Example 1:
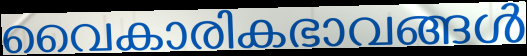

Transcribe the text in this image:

വൈകാരികഭാവങ്ങൾ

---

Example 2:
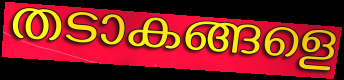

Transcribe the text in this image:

തടാകങ്ങളെ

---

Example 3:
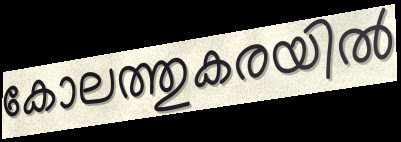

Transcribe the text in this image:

കോലത്തുകരയിൽ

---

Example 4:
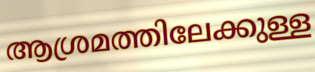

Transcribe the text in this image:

ആശ്രമത്തിലേക്കുള്ള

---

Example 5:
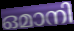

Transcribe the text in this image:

ഒമാനി